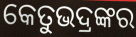
କେତୁଭଦ୍ରଙ୍କର